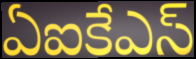
ఏఐకేఎస్